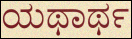
ಯಥಾರ್ಥ